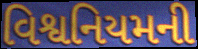
વિશ્વનિયમની